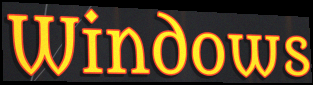
Windows